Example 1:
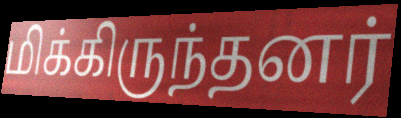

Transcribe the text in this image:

மிக்கிருந்தனர்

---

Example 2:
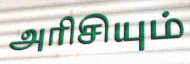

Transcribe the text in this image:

அரிசியும்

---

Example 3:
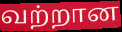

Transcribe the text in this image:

வற்றான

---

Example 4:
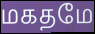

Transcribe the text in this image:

மகதமே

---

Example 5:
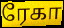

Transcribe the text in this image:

ரேகா